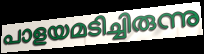
പാളയമടിച്ചിരുന്നു